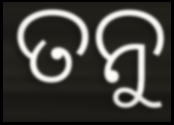
ତନୁ